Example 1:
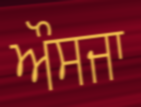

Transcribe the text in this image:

ਔਸਜਾ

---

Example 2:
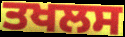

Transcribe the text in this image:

ਤਖਲਸ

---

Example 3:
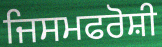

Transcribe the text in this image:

ਜਿਸਮਫਰੋਸ਼ੀ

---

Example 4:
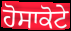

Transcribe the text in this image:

ਹੋਸਾਕੋਟੇ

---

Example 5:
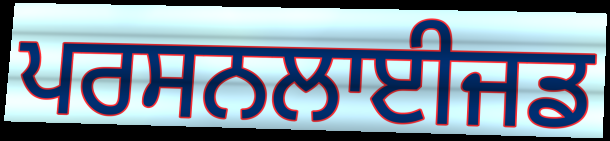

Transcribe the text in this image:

ਪਰਸਨਲਾਈਜਡ